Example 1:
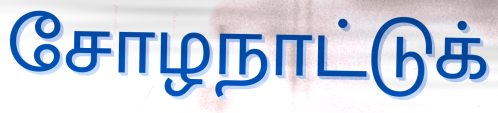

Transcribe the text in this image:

சோழநாட்டுக்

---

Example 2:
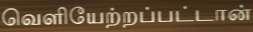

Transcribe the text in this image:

வெளியேற்றப்பட்டான்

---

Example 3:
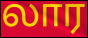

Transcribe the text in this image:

லார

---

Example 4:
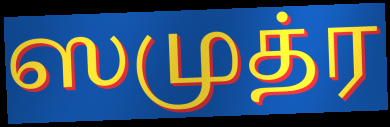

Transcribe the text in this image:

ஸமுத்ர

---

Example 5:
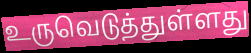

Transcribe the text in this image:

உருவெடுத்துள்ளது